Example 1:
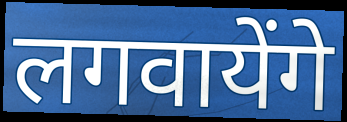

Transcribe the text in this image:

लगवायेंगे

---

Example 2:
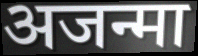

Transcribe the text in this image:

अजन्‍मा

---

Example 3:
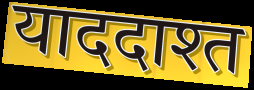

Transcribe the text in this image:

याददाश्त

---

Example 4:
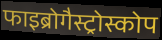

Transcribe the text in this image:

फाइब्रोगैस्ट्रोस्कोप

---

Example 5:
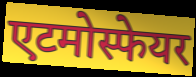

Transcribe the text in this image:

एटमोस्फेयर